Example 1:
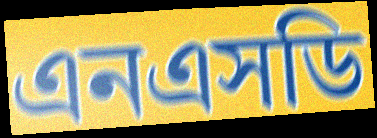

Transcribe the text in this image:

এনএসডি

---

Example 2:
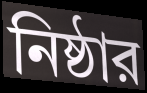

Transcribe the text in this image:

নিষ্ঠার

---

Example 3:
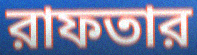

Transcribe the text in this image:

রাফতার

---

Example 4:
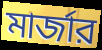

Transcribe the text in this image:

মার্জার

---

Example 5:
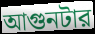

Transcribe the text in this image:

আগুনটার